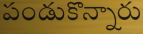
పండుకొన్నారు